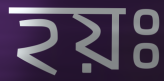
হয়ঃ